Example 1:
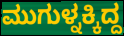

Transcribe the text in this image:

ಮುಗುಳ್ನಕ್ಕಿದ್ದ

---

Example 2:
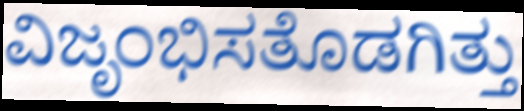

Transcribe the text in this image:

ವಿಜೃಂಭಿಸತೊಡಗಿತ್ತು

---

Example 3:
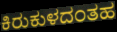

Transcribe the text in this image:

ಕಿರುಕುಳದಂತಹ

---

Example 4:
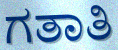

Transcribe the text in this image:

ಗತಾತಿ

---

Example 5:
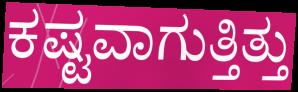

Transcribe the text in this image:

ಕಷ್ಟವಾಗುತ್ತಿತ್ತು